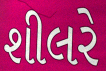
શીલરે